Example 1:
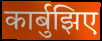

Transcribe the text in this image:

कार्बुझिए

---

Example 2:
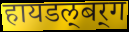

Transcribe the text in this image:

हायडल्‌बर्ग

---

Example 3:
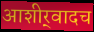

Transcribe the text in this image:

आशीर्वादच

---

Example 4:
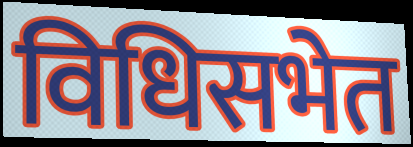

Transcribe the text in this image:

विधिसभेत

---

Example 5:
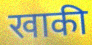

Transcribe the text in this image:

खाकी